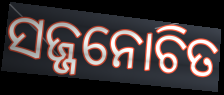
ସଜ୍ଜନୋଚିତ